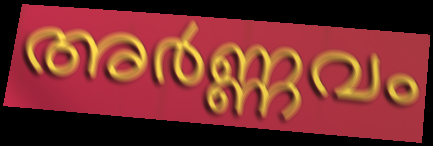
അർണ്ണവം